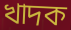
খাদক